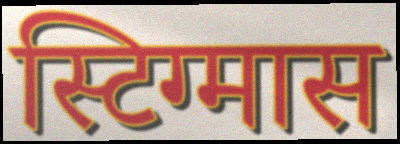
स्टिग्मास